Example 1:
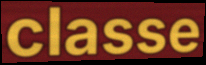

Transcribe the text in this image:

classe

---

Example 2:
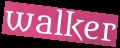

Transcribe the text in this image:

walker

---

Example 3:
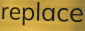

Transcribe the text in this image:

replace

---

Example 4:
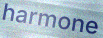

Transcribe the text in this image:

harmone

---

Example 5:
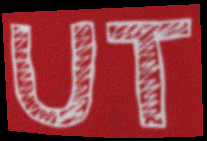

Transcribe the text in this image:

UT